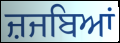
ਜ਼ਜਬਿਆਂ